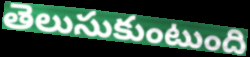
తెలుసుకుంటుంది